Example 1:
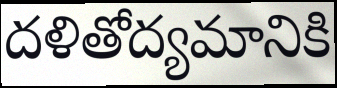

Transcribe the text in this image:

దళితోద్యమానికి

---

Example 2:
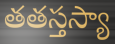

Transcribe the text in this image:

తతస్తస్యా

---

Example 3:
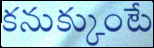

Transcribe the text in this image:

కనుక్కుంటే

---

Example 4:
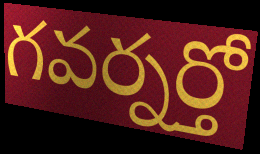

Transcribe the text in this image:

గవర్నర్తో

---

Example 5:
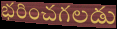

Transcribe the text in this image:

భరించగలడు